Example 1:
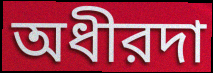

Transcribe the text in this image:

অধীরদা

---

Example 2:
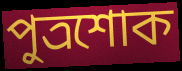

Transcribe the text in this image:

পুত্রশোক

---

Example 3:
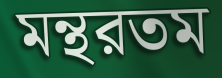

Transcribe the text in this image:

মন্থরতম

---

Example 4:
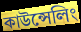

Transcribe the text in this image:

কাউন্সেলিং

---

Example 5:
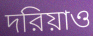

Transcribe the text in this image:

দরিয়াও